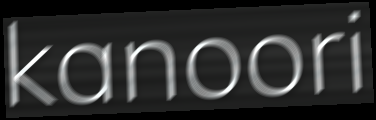
kanoori